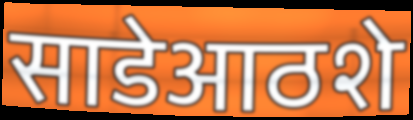
साडेआठशे